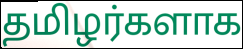
தமிழர்களாக